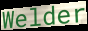
Welder